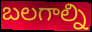
బలగాల్ని